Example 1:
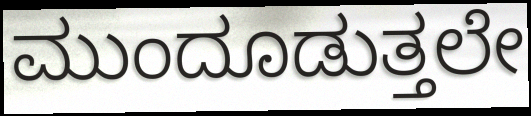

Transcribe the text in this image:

ಮುಂದೂಡುತ್ತಲೇ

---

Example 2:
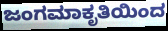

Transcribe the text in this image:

ಜಂಗಮಾಕೃತಿಯಿಂದ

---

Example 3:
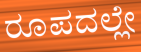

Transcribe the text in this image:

ರೂಪದಲ್ಲೇ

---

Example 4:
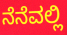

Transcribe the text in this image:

ನೆನೆವಲ್ಲಿ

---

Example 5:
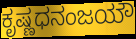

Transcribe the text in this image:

ಕೃಷ್ಣಧನಂಜಯೌ